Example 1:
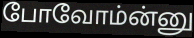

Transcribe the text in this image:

போவோம்ன்னு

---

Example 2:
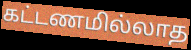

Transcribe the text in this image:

கட்டணமில்லாத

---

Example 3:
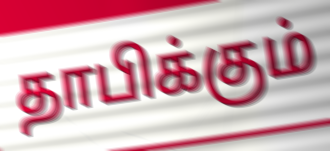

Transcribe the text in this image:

தாபிக்கும்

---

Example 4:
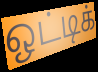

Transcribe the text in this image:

ஒட்டிக்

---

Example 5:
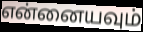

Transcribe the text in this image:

என்னையவும்